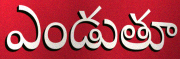
ఎండుతూ